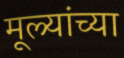
मूल्यांच्या